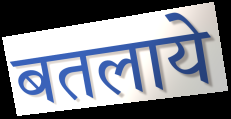
बतलाये